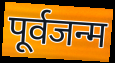
पूर्वजन्‍म